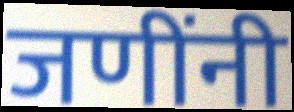
जणींनी